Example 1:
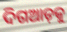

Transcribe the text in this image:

ଦିଗଆଡ଼କୁ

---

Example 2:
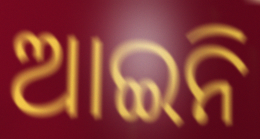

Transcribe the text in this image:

ଆଇନି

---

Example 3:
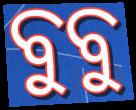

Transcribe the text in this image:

ବୁବୁ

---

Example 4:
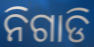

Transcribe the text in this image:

ନିଗାଡି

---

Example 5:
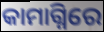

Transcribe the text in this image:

କାମାଗ୍ନିରେ